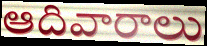
ఆదివారాలు